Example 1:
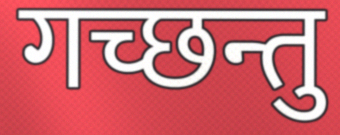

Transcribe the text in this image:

गच्छन्तु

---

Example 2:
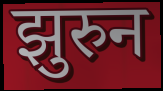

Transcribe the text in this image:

झुरुन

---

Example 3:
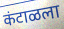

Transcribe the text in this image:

कंटाळला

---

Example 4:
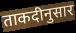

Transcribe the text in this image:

ताकदीनुसार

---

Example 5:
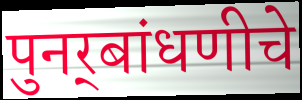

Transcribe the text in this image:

पुनर्बांधणीचे